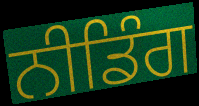
ਨੀਡਿੰਗ